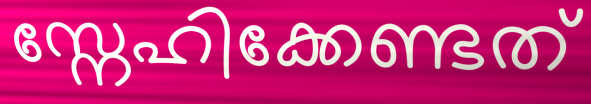
സ്നേഹിക്കേണ്ടത്